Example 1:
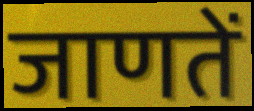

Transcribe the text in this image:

जाणतें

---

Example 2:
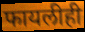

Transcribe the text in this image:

फायलीही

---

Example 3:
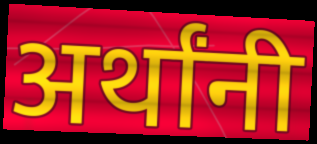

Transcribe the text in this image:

अर्थांनी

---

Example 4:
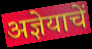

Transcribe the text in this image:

अज्ञेयाचें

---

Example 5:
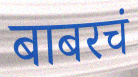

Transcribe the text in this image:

बाबरचं